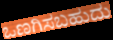
ಒಣಗಿಸಬಹುದು